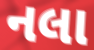
નલા